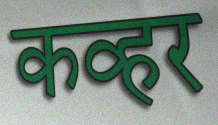
कव्हर